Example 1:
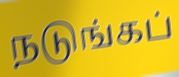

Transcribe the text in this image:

நடுங்கப்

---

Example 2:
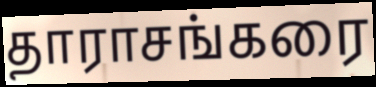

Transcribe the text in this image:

தாராசங்கரை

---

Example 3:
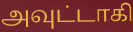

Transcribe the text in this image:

அவுட்டாகி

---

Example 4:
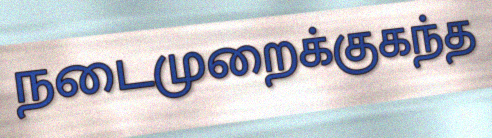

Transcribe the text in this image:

நடைமுறைக்குகந்த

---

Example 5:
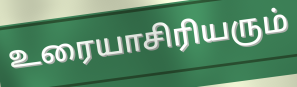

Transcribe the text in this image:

உரையாசிரியரும்